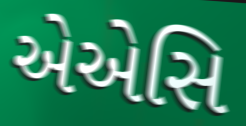
એએસિ